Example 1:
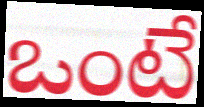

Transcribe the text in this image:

ఒంటే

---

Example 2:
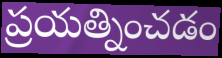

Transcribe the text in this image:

ప్రయత్నించడం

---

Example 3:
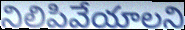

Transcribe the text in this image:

నిలిపివేయాలని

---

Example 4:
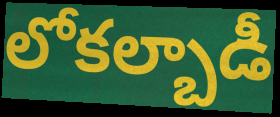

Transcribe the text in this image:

లోకల్బాడీ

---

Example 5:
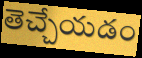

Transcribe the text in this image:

తెచ్చేయడం